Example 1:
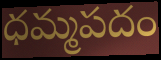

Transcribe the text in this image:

ధమ్మపదం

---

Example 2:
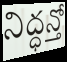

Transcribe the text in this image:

నిద్ధన్తో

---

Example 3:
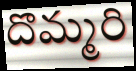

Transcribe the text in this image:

దొమ్మరి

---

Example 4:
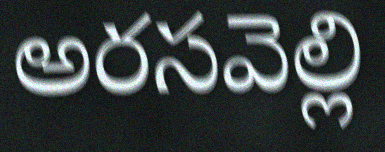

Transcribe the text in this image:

అరసవెల్లి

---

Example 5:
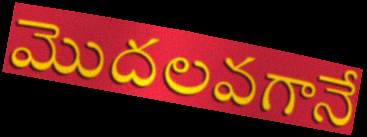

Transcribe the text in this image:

మొదలవగానే